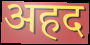
अहद